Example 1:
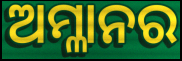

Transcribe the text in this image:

ଅମ୍ଳାନର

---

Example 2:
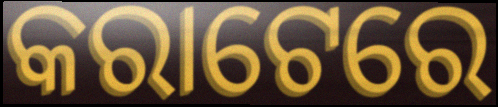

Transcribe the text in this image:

କରାଟେରେ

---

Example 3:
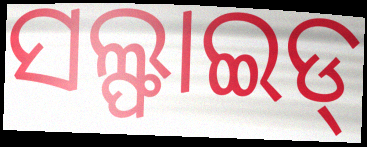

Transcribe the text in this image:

ସଲ୍ଫାଇଡ୍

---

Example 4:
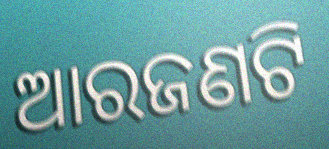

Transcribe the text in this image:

ଆରଜଣଟି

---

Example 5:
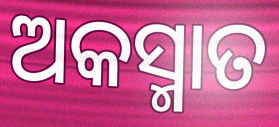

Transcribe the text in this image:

ଅକସ୍ମାତ